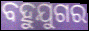
ବହୁଯୁଗର